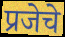
प्रजेचे